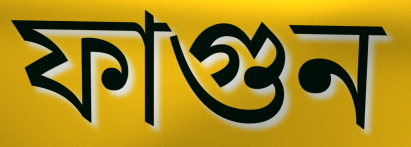
ফাগুন